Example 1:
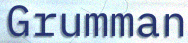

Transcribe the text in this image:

Grumman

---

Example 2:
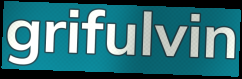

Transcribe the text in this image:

grifulvin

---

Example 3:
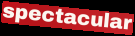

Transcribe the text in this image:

spectacular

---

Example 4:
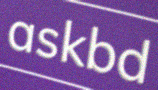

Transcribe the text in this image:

askbd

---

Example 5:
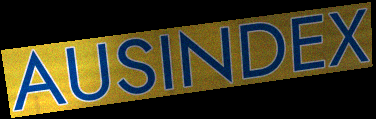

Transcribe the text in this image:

AUSINDEX